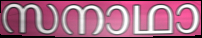
സനാഥാ